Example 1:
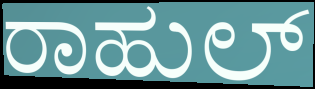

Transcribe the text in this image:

ರಾಹುಲ್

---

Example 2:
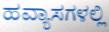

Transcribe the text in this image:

ಹವ್ಯಾಸಗಳಲ್ಲಿ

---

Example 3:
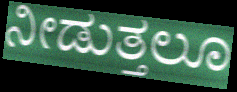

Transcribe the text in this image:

ನೀಡುತ್ತಲೂ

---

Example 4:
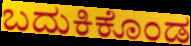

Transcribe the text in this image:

ಬದುಕಿಕೊಂಡ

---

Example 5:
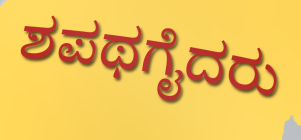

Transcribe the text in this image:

ಶಪಥಗೈದರು